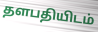
தளபதியிடம்